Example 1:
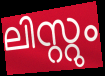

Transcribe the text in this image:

ലിസ്റ്റും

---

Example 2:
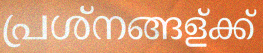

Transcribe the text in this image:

പ്രശ്നങ്ങള്ക്ക്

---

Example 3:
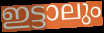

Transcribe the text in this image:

ഇട്ടാലും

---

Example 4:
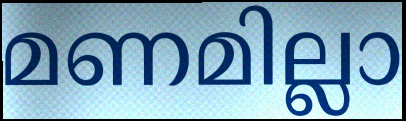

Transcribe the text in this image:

മണമില്ലാ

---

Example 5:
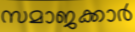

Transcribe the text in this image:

സമാജക്കാർ